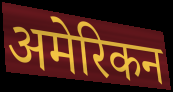
अमेरिकन